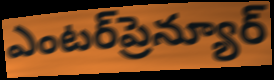
ఎంటర్‌ప్రెన్యూర్